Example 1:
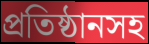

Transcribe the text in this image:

প্রতিষ্ঠানসহ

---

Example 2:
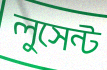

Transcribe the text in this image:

লুসেন্ট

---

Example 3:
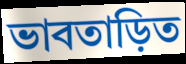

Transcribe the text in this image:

ভাবতাড়িত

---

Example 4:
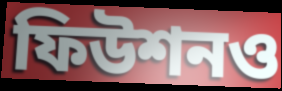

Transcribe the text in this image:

ফিউশনও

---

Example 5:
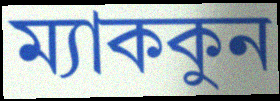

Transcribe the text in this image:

ম্যাককুন